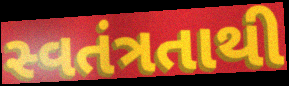
સ્વતંત્રતાથી